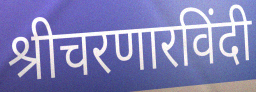
श्रीचरणारविंदी